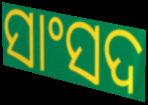
ସାଂସଦ